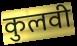
कुलवी